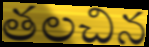
తలచిన